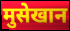
मुसेखान